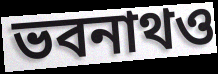
ভবনাথও